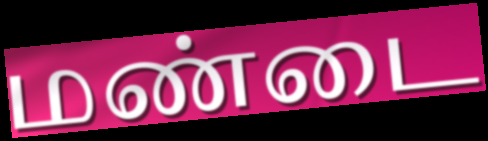
மண்டை